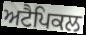
ਅਟੈਪਿਕਲ